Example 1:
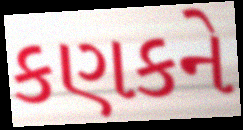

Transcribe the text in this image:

કણકને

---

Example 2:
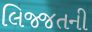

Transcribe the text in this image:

લિજ્જતની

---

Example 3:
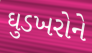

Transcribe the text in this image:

ઘુડખરોને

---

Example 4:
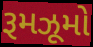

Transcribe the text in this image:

રૂમઝૂમો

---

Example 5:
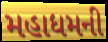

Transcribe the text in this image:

મહાધમની